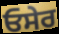
ਓਸੇਰ